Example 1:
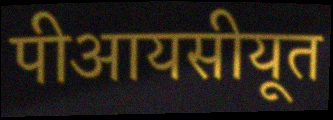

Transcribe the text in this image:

पीआयसीयूत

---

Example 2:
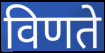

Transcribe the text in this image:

विणते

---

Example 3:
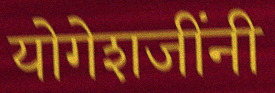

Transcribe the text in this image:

योगेशजींनी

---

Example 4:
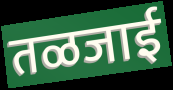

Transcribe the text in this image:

तळजाई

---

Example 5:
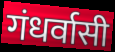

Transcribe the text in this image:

गंधर्वासी